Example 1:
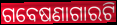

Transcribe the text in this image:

ଗବେଷଣାଗାରଟି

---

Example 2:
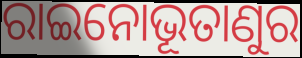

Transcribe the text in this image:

ରାଇନୋଭୂତାଣୁର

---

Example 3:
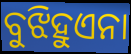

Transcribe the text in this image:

ବୁଝିହୁଏନା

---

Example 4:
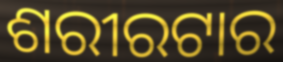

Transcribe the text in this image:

ଶରୀରଟାର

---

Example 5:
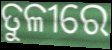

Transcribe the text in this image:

ତୁଳୀରେ